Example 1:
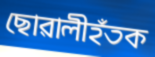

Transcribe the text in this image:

ছোৱালীহঁতক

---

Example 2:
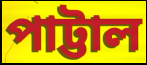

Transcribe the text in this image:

পাট্টাল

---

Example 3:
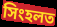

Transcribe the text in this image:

সিংহলত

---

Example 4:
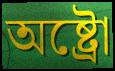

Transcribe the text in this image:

অষ্ট্ৰো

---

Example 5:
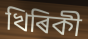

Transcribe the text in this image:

খিৰিকী